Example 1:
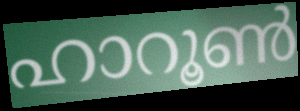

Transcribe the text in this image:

ഹാറൂൺ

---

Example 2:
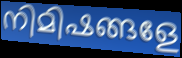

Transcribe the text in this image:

നിമിഷങ്ങളേ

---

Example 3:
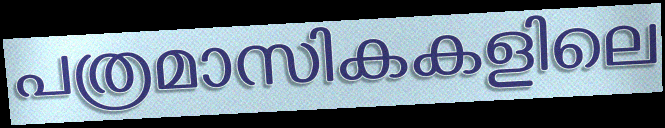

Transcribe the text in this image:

പത്രമാസികകളിലെ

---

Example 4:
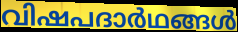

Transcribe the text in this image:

വിഷപദാർഥങ്ങൾ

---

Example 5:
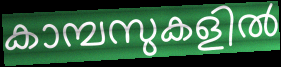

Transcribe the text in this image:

കാമ്പസുകളിൽ